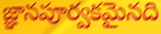
జ్ఞానపూర్వకమైనది